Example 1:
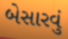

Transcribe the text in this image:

બેસારવું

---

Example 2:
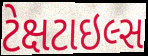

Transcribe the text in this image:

ટેક્ષટાઇલ્સ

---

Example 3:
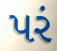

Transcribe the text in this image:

પરં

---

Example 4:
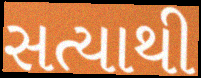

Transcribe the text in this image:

સત્યાથી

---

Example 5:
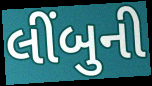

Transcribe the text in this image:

લીંબુની